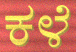
ಕಳೆ